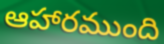
ఆహారముంది